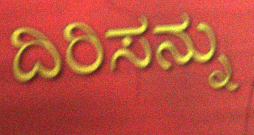
ದಿರಿಸನ್ನು